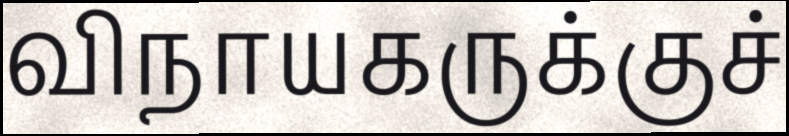
விநாயகருக்குச்